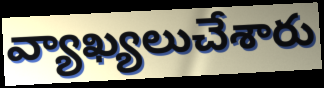
వ్యాఖ్యలుచేశారు